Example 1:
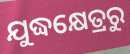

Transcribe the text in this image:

ଯୁଦ୍ଧକ୍ଷେତ୍ରରୁ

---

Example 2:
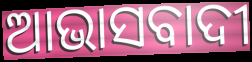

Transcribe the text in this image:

ଆଭାସବାଦୀ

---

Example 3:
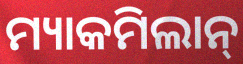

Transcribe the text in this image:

ମ୍ୟାକମିଲାନ୍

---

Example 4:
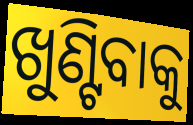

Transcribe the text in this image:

ଖୁଣ୍ଟିବାକୁ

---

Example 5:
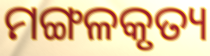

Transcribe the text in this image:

ମଙ୍ଗଳକୃତ୍ୟ